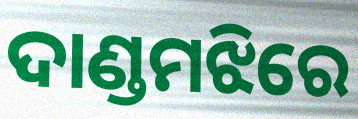
ଦାଣ୍ଡମଝିରେ